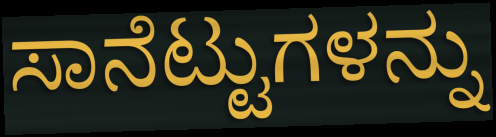
ಸಾನೆಟ್ಟುಗಳನ್ನು